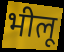
भीलू